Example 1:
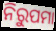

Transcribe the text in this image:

ନିରୁପମା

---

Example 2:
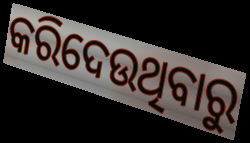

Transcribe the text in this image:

କରିଦେଉଥିବାରୁ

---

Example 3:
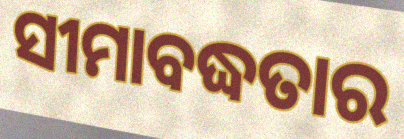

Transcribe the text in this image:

ସୀମାବଦ୍ଧତାର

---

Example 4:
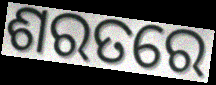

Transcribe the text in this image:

ଶରତରେ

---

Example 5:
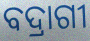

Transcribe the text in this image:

ବଦ୍ରାଗୀ